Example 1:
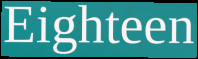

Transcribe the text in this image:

Eighteen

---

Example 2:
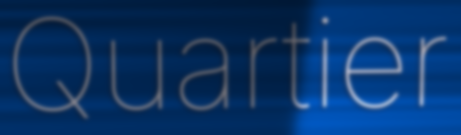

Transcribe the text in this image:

Quartier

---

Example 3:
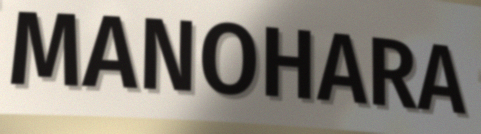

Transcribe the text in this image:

MANOHARA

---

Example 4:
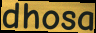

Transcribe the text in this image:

dhosa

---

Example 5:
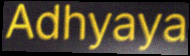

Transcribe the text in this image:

Adhyaya